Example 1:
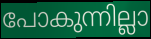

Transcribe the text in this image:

പോകുന്നില്ലാ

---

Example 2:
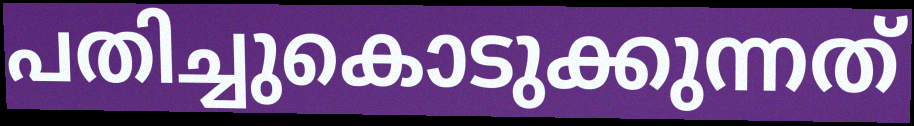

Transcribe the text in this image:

പതിച്ചുകൊടുക്കുന്നത്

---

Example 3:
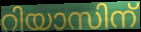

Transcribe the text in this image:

റിയാസിന്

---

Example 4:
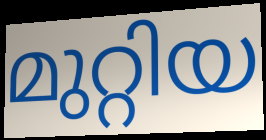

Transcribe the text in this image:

മുറ്റിയ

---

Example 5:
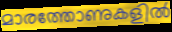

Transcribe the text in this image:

മാരത്തോണുകളിൽ